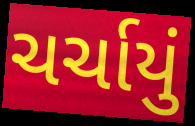
ચર્ચાયું